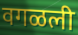
वगळली